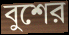
বুশের